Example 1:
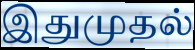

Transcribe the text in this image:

இதுமுதல்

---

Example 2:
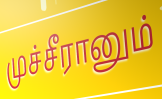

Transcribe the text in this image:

முச்சீரானும்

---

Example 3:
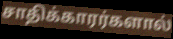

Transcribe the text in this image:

சாதிக்காரர்களால்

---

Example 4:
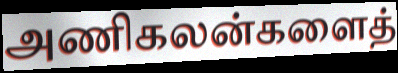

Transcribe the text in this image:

அணிகலன்களைத்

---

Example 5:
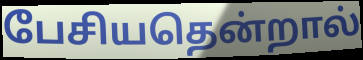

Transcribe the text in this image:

பேசியதென்றால்